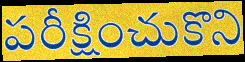
పరీక్షించుకొని